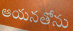
ఆయనతోను